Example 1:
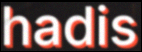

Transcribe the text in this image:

hadis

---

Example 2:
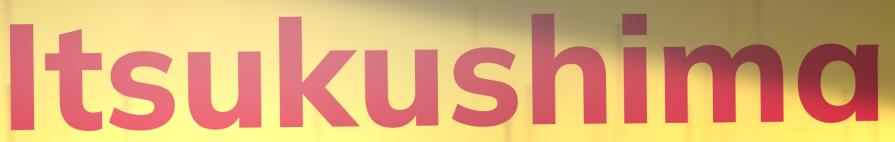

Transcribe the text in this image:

Itsukushima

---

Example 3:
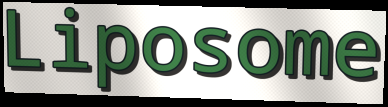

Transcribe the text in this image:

Liposome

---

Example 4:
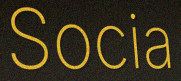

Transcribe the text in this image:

Socia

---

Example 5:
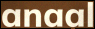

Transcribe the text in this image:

anaal